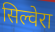
सिल्वेरा